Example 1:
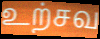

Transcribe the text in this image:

உற்சவ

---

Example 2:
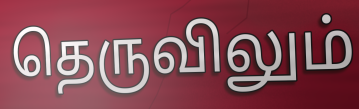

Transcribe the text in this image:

தெருவிலும்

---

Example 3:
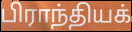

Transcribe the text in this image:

பிராந்தியக்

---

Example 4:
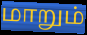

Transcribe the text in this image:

மாறும்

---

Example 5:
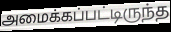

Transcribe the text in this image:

அமைக்கப்பட்டிருந்த